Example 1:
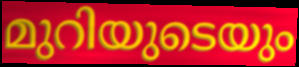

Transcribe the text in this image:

മുറിയുടെയും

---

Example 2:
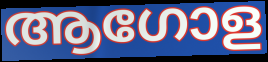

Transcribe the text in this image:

ആഗോള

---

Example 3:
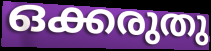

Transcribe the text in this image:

ഒക്കരുതു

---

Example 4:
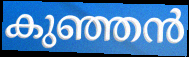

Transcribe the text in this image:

കുഞ്ഞൻ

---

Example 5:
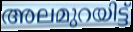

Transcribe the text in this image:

അലമുറയിട്ട്